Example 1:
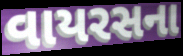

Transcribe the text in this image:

વાયરસના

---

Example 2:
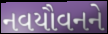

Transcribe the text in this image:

નવયૌવનને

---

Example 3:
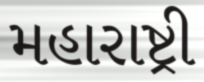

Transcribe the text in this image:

મહારાષ્ટ્રી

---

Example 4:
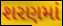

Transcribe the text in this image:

શરણમાં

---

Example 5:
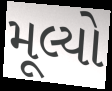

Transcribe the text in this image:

મૂલ્યો